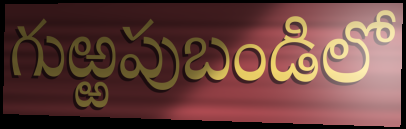
గుఱ్ఱపుబండిలో